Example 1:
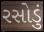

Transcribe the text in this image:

રસોડું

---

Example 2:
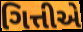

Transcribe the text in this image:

ગિત્તીએ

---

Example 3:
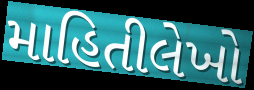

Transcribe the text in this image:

માહિતીલેખો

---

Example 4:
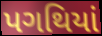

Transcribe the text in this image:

પગથિયાં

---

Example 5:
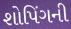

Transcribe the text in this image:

શોપિંગની